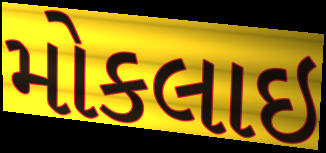
મોકલાઇ